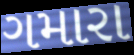
ગમારા